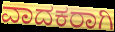
ವಾದಕರಾಗಿ